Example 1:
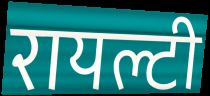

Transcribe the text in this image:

रायल्टी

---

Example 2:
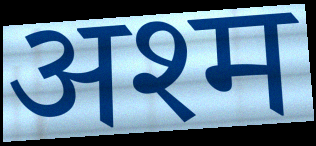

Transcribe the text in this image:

अश्म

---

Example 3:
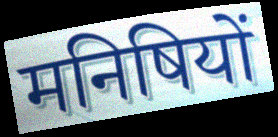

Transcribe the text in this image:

मनिषियों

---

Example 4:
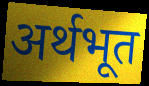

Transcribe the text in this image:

अर्थभूत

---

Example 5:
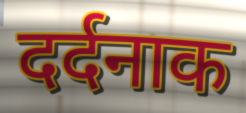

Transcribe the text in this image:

दर्दनाक